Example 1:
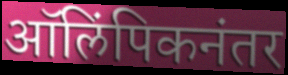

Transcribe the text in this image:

ऑलिंपिकनंतर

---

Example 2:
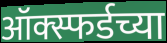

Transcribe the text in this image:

ऑक्स्फर्डच्या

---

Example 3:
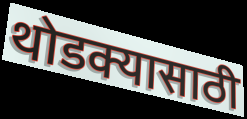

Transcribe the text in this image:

थोडक्यासाठी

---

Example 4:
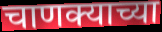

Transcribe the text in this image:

चाणक्याच्या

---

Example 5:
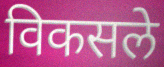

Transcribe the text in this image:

विकसले